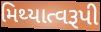
મિથ્યાત્વરૂપી